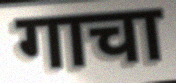
गाचा